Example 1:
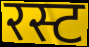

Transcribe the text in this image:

रस्ट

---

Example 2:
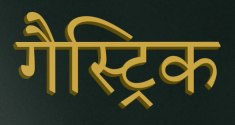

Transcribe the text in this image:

गैस्ट्रिक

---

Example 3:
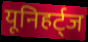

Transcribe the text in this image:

यूनिहर्ट्ज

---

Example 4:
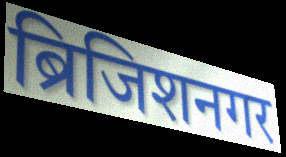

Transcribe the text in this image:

ब्रिजिशनगर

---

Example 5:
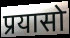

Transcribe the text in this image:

प्रयासो